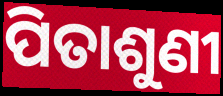
ପିତାଶୁଣୀ